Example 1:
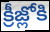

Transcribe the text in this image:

క్రీజ్లోకి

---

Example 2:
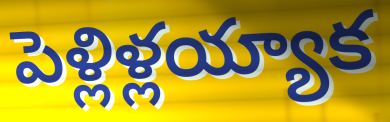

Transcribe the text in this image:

పెళ్లిళ్లయ్యాక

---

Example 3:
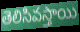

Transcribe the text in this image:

తెలిసివస్తాయి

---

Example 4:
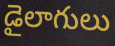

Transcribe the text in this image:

డైలాగులు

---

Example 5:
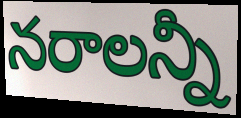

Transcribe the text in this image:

నరాలన్నీ